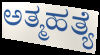
ಅತ್ಮಹತ್ಯೆ